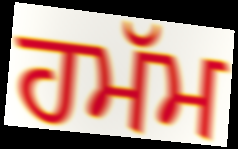
ਹਮੱਮ